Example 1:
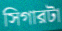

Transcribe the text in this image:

সিগারটা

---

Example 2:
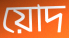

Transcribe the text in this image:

য়োদ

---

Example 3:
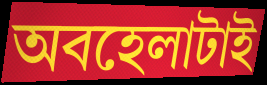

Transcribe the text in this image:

অবহেলাটাই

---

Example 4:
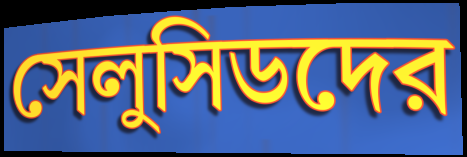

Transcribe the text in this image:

সেলুসিডদের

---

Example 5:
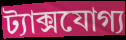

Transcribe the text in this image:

ট্যাক্সযোগ্য